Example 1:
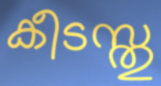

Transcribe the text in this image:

കീടസ്തു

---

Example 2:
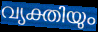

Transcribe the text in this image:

വ്യക്തിയും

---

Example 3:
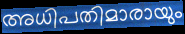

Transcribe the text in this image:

അധിപതിമാരായും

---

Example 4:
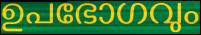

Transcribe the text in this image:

ഉപഭോഗവും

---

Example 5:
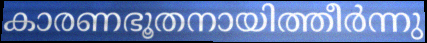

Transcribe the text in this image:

കാരണഭൂതനായിത്തീർന്നു